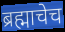
ब्रह्माचेच